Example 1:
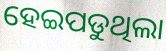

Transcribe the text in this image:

ହେଇପଡୁଥିଲା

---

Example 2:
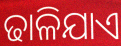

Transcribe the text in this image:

ଢାଳିଯାଏ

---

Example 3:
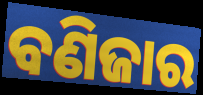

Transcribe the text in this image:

ବଣିଜାର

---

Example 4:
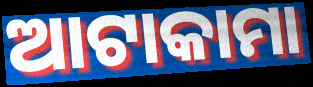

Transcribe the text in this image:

ଆଟାକାମା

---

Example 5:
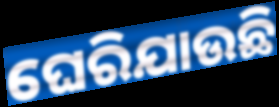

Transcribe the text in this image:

ଘେରିଯାଉଛି